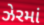
ઝેરમાં